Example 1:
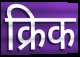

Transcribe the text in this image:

क्रिक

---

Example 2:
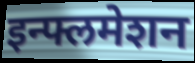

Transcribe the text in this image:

इन्फ्लमेशन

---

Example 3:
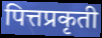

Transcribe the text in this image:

पित्तप्रकृती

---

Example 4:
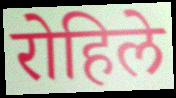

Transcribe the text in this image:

रोहिले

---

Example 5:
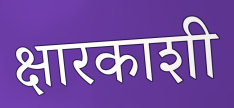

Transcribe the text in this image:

क्षारकाशी